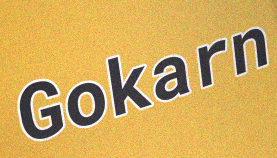
Gokarn